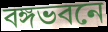
বঙ্গভবনে